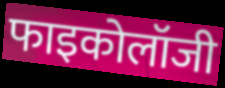
फाइकोलॉजी